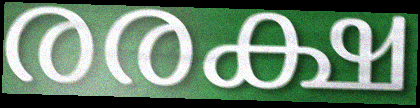
രരക്ഷ